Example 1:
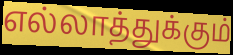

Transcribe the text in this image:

எல்லாத்துக்கும்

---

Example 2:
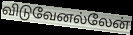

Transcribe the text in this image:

விடுவேனல்லேன்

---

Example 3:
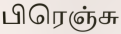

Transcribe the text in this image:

பிரெஞ்சு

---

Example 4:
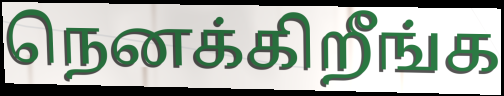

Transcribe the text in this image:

நெனக்கிறீங்க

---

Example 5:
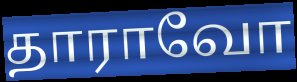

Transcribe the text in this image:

தாராவோ